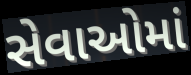
સેવાઓમાં